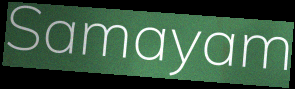
Samayam